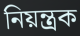
নিয়ন্ত্ৰক